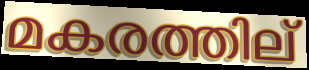
മകരത്തില്